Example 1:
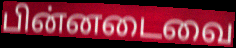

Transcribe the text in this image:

பின்னடைவை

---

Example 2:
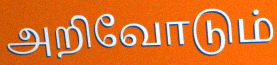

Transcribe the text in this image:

அறிவோடும்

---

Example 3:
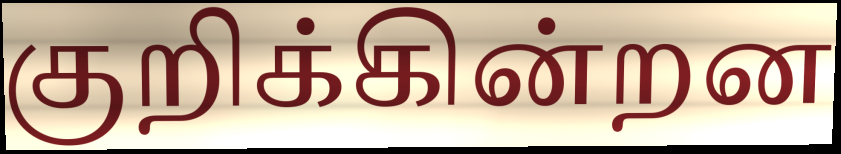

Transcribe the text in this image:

குறிக்கின்றன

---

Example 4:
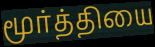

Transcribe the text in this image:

மூர்த்தியை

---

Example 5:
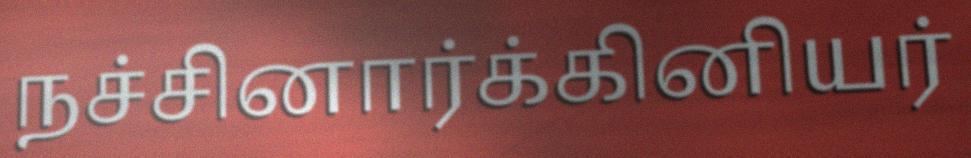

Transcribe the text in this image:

நச்சினார்க்கினியர்